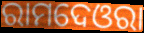
ରାମଦେଓରା